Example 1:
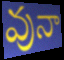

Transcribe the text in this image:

వునా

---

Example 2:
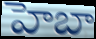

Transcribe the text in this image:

హెబా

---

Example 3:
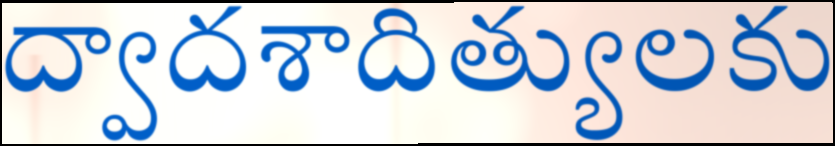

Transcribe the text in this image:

ద్వాదశాదిత్యులకు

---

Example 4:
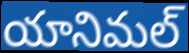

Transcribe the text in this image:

యానిమల్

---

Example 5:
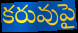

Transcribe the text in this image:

కరువుపై